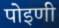
पोइणी